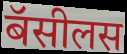
बॅसीलस